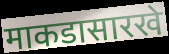
माकडासारखे